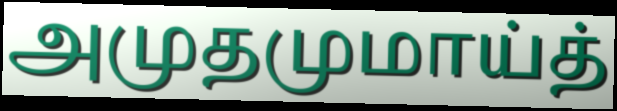
அமுதமுமாய்த்